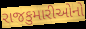
રાજકુમારીઓનો